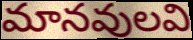
మానవులవి